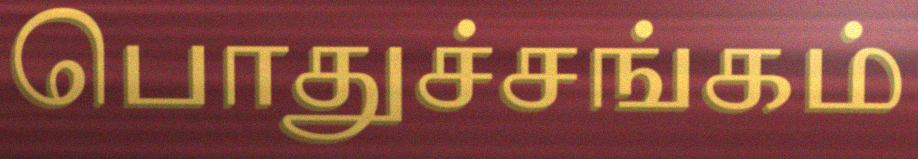
பொதுச்சங்கம்